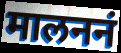
मालननं